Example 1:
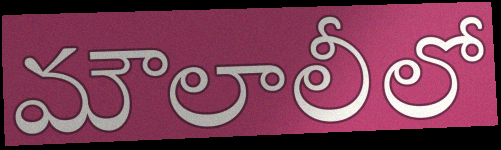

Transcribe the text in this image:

మౌలాలీలో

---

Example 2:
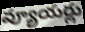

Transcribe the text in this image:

వ్యూయర్లు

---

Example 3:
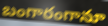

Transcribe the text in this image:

బంగారంగానూ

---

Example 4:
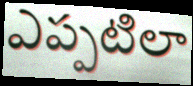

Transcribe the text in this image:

ఎప్పటిలా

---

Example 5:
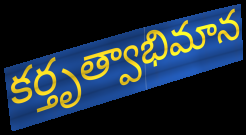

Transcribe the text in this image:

కర్తృత్వాభిమాన